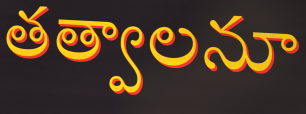
తత్వాలనూ